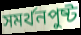
সমর্থনপুষ্ট